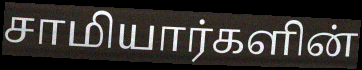
சாமியார்களின்